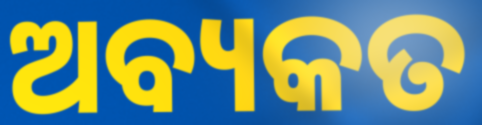
ଅବ୍ୟକତ